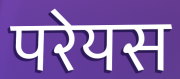
परेयस